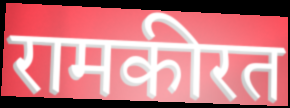
रामकीरत